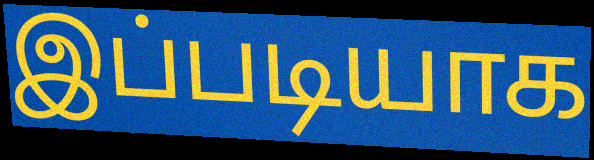
இப்படியாக